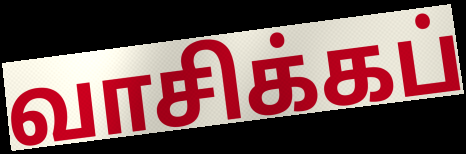
வாசிக்கப்